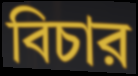
বিচার